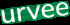
urvee